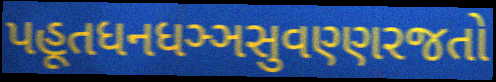
પહૂતધનધઞ્ઞસુવણ્ણરજતો